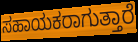
ಸಹಾಯಕರಾಗುತ್ತಾರೆ